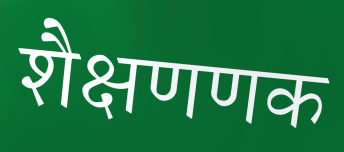
शैक्षणणक